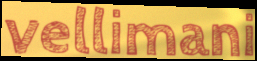
vellimani